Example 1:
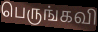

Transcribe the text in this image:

பெருங்கவி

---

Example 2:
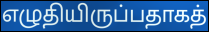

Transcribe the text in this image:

எழுதியிருப்பதாகத்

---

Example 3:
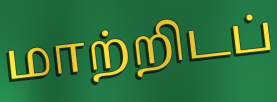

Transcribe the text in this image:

மாற்றிடப்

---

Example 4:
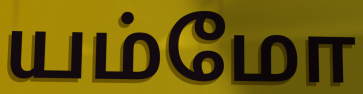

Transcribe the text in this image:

யம்மோ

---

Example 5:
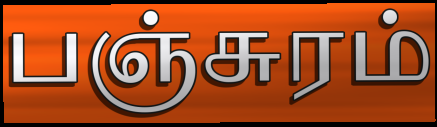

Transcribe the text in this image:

பஞ்சுரம்